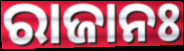
ରାଜାନଃ